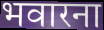
भवारना